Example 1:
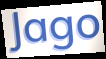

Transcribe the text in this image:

Jago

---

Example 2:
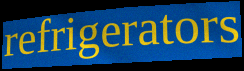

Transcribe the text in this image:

refrigerators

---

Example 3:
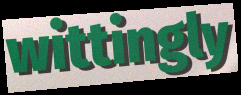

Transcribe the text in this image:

wittingly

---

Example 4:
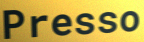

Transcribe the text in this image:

Presso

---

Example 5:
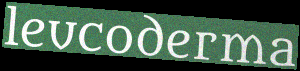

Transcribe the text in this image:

leucoderma